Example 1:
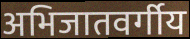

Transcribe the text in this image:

अभिजातवर्गीय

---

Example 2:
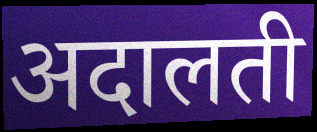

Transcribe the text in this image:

अदालती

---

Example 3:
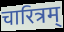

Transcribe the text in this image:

चारित्रम्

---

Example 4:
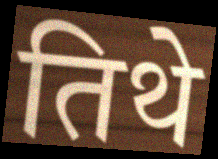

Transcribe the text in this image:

तिथे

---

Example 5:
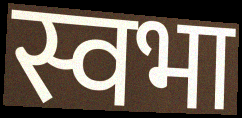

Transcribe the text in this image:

स्वभा